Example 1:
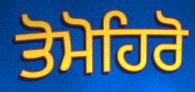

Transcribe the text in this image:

ਤੋਮੋਹਿਰੋ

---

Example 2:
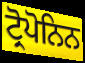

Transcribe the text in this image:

ਟ੍ਰੋਪੋਨਿਨ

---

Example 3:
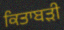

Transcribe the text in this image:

ਕਿਤਾਬੜੀ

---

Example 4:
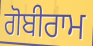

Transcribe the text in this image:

ਗੋਬੀਰਾਮ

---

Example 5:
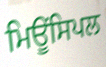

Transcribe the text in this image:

ਮਿਊਂਸਿਪਲ